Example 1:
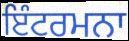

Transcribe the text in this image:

ਇੰਟਰਮਨਾ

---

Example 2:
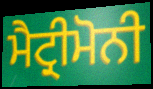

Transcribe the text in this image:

ਮੈਟ੍ਰੀਮੋਨੀ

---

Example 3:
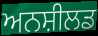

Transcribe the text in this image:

ਅਨਸ਼ੀਲਡ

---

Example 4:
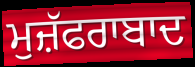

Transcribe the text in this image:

ਮੁਜ਼ੱਫਰਾਬਾਦ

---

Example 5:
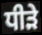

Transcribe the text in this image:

ਧੀੜੇ